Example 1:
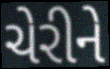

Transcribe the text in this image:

ચેરીને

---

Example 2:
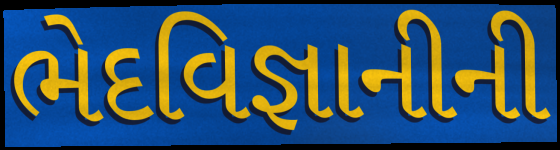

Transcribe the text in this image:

ભેદવિજ્ઞાનીની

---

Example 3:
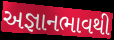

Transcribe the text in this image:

અજ્ઞાનભાવથી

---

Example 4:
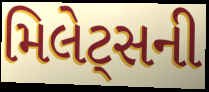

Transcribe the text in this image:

મિલેટ્સની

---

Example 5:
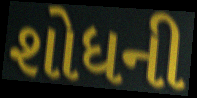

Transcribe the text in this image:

શોધની